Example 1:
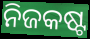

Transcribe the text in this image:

ନିଜକଷ୍ଟ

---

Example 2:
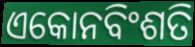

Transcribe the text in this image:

ଏକୋନବିଂଶତି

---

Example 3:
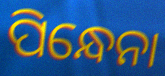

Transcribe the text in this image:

ପିନ୍ଧେନା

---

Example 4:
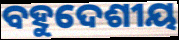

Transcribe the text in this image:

ବହୁଦେଶୀୟ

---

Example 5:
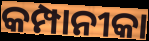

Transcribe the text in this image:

କମ୍ପାନୀକା